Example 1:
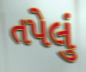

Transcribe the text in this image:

તપેલું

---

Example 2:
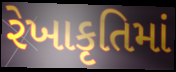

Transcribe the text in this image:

રેખાકૃતિમાં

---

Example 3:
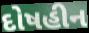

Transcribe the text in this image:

દોષહીન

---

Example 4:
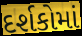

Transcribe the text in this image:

દર્શકોમાં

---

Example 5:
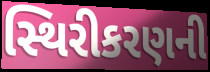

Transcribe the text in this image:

સ્થિરીકરણની